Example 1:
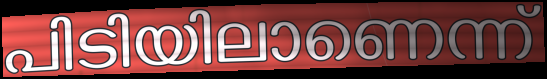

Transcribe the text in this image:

പിടിയിലാണെന്ന്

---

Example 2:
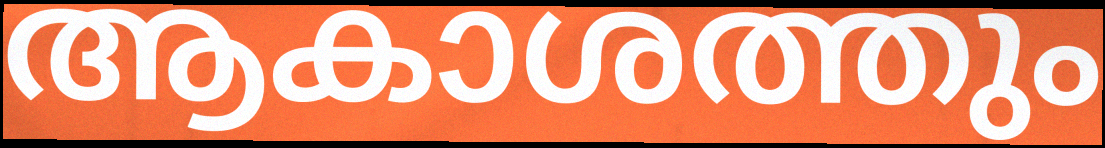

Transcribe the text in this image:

ആകാശത്തും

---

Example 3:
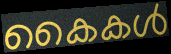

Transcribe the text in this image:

കൈകൾ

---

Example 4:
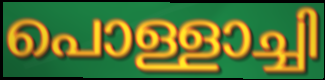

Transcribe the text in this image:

പൊള്ളാച്ചി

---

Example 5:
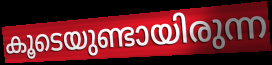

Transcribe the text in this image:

കൂടെയുണ്ടായിരുന്ന